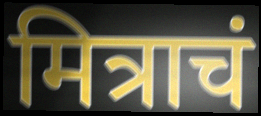
मित्राचं